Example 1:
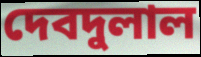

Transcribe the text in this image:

দেবদুলাল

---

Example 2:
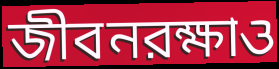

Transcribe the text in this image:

জীবনরক্ষাও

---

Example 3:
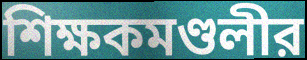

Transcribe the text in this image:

শিক্ষকমণ্ডলীর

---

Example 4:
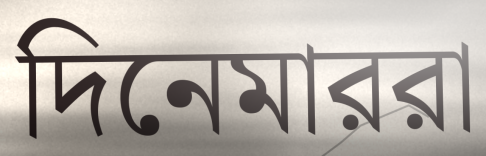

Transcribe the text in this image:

দিনেমাররা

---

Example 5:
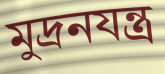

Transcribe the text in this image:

মুদ্রনযন্ত্র